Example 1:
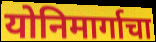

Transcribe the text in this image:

योनिमार्गाचा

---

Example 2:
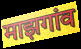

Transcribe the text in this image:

माझगांव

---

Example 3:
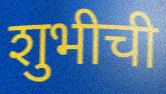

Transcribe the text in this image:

शुभीची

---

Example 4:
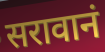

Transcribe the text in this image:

सरावानं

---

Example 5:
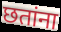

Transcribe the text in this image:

छतांना